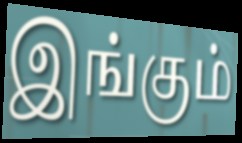
இங்கும்